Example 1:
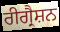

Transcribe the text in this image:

ਰੀਗ੍ਰੈਸ਼ਨ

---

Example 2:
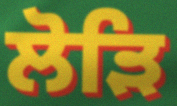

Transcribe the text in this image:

ਲੋੜਿ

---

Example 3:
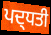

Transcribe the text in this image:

ਪਦ੍ਧਤੀ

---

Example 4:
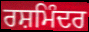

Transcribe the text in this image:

ਰਸ਼ਮਿੰਦਰ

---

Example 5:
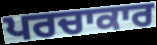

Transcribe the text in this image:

ਪਰਚਾਕਾਰ